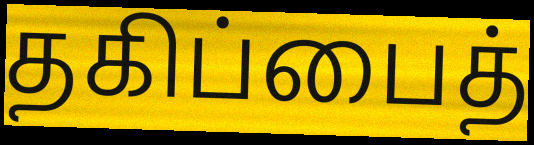
தகிப்பைத்